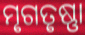
ମୃଗତୃଷ୍ଣା